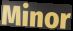
Minor